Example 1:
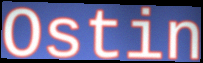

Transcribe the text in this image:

Ostin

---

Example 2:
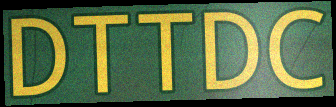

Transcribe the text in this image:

DTTDC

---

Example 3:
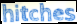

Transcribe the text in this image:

hitches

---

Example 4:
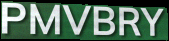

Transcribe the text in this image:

PMVBRY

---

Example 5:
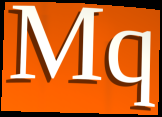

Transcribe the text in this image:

Mq